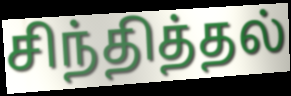
சிந்தித்தல்